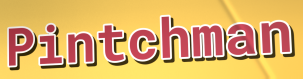
Pintchman